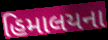
હિમાલયના